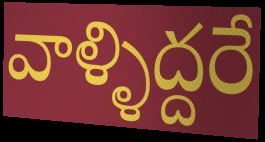
వాళ్ళిద్దరే